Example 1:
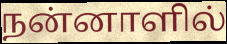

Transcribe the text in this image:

நன்னாளில்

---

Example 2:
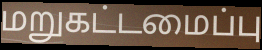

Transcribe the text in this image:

மறுகட்டமைப்பு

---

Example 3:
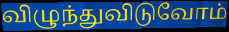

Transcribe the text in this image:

விழுந்துவிடுவோம்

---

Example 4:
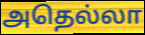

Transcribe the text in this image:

அதெல்லா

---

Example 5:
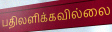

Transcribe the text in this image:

பதிலளிக்கவில்லை